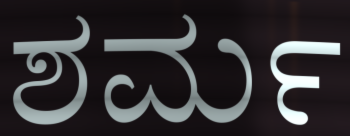
ಶರ್ಮ